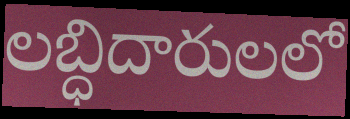
లబ్ధిదారులలో